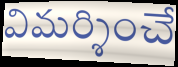
విమర్శించే